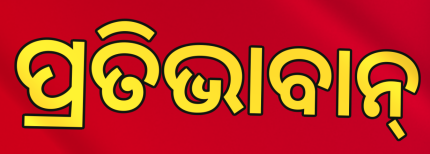
ପ୍ରତିଭାବାନ୍